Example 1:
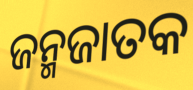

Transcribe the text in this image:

ଜନ୍ମଜାତକ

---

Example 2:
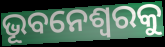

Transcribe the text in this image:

ଭୂବନେଶ୍ୱରକୁ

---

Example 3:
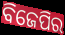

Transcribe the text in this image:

ବିଜେପିର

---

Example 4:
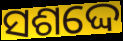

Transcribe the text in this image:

ସଶଦ୍ଦେ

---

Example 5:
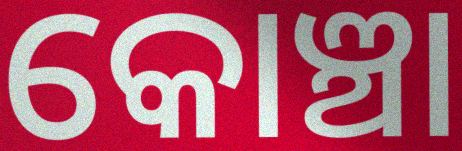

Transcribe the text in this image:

କୋଞ୍ଚା